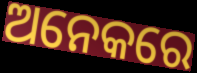
ଅନେକରେ